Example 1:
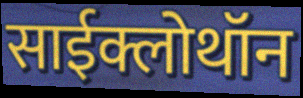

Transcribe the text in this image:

साईक्लोथॉन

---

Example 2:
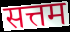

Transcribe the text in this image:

सत्तम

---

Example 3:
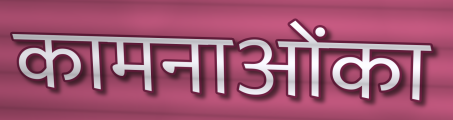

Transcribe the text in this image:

कामनाओंका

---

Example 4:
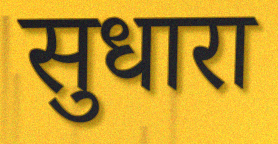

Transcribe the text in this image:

सुधारा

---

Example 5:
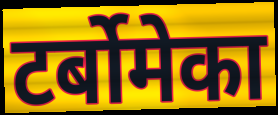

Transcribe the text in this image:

टर्बोमेका